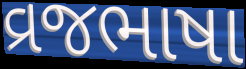
વ્રજભાષા